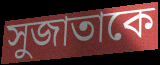
সুজাতাকে